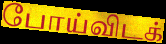
போய்விடக்